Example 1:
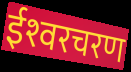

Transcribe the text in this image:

ईश्वरचरण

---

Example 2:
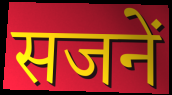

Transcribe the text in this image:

सजनें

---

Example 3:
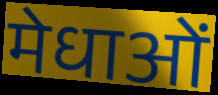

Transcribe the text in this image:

मेधाओं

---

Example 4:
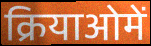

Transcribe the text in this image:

क्रियाओमें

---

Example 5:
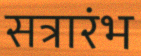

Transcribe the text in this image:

सत्रारंभ